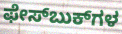
ಫೇಸ್‌ಬುಕ್‌ಗಳ